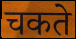
चकते